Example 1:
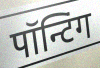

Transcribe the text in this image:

पॉन्टिंग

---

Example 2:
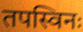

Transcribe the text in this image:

तपस्विनः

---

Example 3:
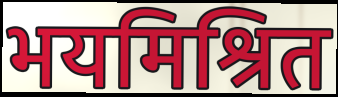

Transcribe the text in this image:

भयमिश्रित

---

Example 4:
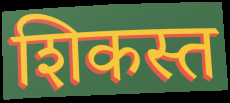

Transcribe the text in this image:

शिकस्त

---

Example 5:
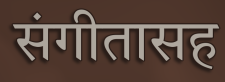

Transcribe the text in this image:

संगीतासह